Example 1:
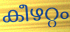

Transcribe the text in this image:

കീഴറ്റം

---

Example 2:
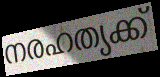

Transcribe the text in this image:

നരഹത്യക്ക്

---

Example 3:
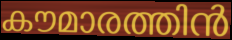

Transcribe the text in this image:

കൗമാരത്തിൻ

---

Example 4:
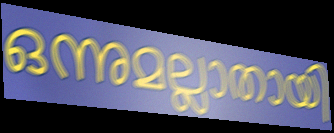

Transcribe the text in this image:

ഒന്നുമല്ലാതായി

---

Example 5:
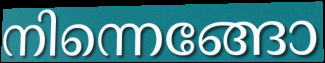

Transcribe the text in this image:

നിന്നെങ്ങോ